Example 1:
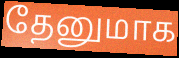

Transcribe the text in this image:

தேனுமாக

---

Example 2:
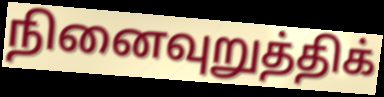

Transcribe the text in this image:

நினைவுறுத்திக்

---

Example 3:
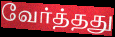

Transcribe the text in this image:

வேர்த்தது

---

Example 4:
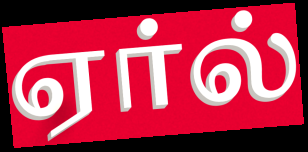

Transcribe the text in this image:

ஏர்ல்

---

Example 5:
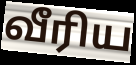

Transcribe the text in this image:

வீரிய